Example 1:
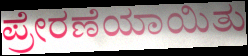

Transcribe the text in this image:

ಪ್ರೇರಣೆಯಾಯಿತು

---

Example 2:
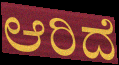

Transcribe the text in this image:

ಆರಿದೆ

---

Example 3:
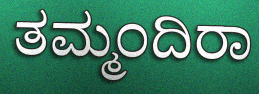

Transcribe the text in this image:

ತಮ್ಮಂದಿರಾ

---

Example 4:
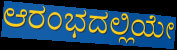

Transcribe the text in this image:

ಆರಂಭದಲ್ಲಿಯೇ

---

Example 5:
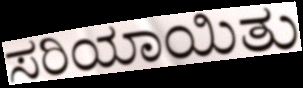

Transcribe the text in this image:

ಸರಿಯಾಯಿತು